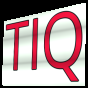
TIQ